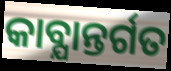
କାବ୍ଯାନ୍ତର୍ଗତ